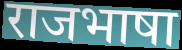
राजभाषा